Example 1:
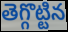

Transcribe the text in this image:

తెగ్గొట్టిన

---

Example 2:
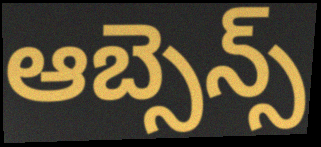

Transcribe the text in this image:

ఆబ్సెన్స్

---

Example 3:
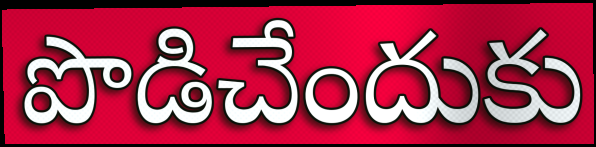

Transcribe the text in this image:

పొడిచేందుకు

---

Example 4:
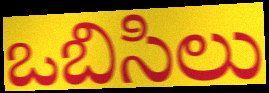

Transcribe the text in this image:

ఒబిసిలు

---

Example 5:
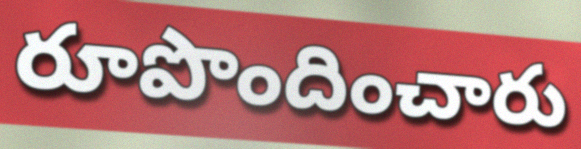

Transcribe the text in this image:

రూపొందించారు